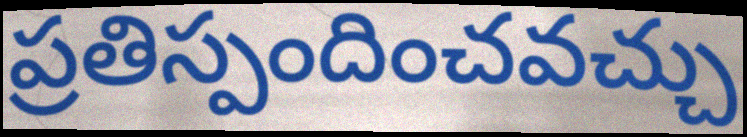
ప్రతిస్పందించవచ్చు